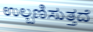
ಉಲ್ಬಣಿಸುತ್ತದೆ